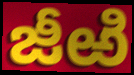
జీఱి